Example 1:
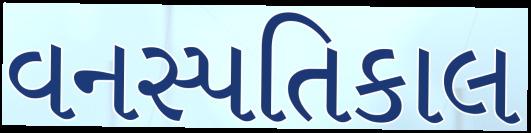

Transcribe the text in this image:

વનસ્પતિકાલ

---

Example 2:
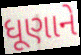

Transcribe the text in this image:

ધૂણાને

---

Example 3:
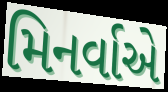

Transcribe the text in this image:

મિનર્વાએ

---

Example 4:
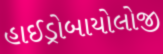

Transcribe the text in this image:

હાઈડ્રોબાયોલોજી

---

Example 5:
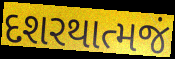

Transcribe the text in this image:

દશરથાત્મજં